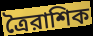
ত্রৈরাশিক